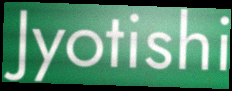
Jyotishi